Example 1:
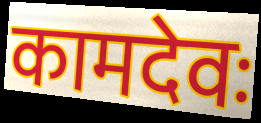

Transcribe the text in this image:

कामदेवः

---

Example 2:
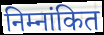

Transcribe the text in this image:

निम्नांकित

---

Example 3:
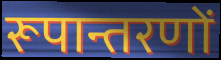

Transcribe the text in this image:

रूपान्तरणों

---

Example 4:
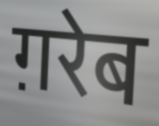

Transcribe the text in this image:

ग़रेब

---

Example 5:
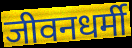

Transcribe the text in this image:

जीवनधर्मी